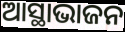
ଆସ୍ଥାଭାଜନ